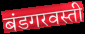
बंडगरवस्ती